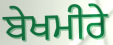
ਬੇਖਮੀਰੇ